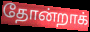
தோன்றாக்